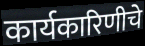
कार्यकारिणीचे